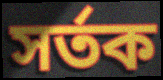
সর্তক